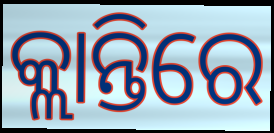
କ୍ଲାନ୍ତିରେ